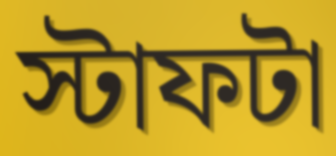
স্টাফটা